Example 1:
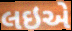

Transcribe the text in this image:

લઇએ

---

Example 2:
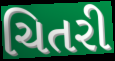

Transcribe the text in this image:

ચિતરી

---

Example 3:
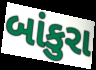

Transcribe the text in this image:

બાંકુરા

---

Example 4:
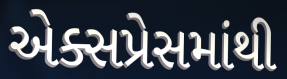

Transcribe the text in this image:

એક્સપ્રેસમાંથી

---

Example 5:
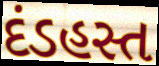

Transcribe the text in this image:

દંડહસ્ત